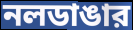
নলডাঙার